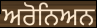
ਅਰੋਨਿਅਨ